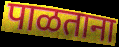
पाळताना